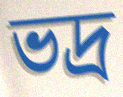
ভদ্র